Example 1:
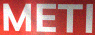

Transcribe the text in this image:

METI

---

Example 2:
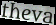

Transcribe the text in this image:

theva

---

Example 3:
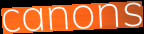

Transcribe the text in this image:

canons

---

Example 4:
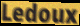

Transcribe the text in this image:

Ledoux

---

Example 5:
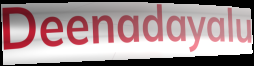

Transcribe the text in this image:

Deenadayalu